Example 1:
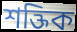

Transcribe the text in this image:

শক্তিক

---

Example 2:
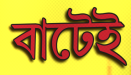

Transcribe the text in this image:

বাটেই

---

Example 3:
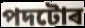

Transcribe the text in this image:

পদটোৰ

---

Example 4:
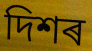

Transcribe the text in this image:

দিশৰ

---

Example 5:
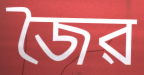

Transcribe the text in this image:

জৈৱ